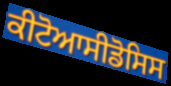
ਕੀਟੋਆਸੀਡੋਸਿਸ